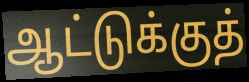
ஆட்டுக்குத்